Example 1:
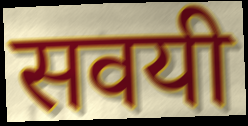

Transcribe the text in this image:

सवयी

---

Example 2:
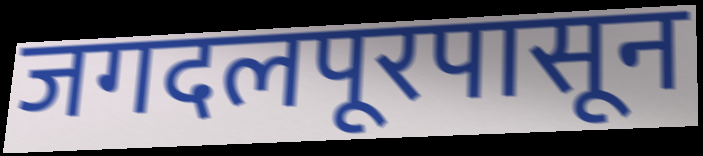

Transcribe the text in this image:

जगदलपूरपासून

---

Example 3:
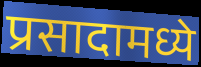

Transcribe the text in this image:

प्रसादामध्ये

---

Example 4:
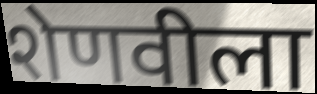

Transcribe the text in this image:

शेणवीला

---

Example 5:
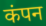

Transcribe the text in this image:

कंपन